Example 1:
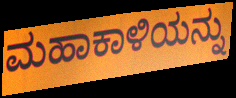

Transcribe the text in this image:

ಮಹಾಕಾಳಿಯನ್ನು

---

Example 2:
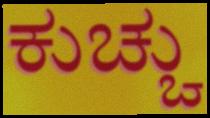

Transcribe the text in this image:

ಕುಚ್ಚು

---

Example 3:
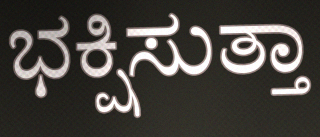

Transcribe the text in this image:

ಭಕ್ಷಿಸುತ್ತಾ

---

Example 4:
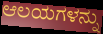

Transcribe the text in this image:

ಆಲಯಗಳನ್ನು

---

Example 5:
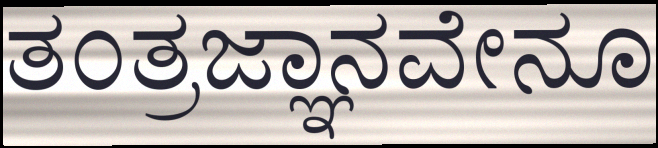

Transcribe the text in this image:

ತಂತ್ರಜ್ಞಾನವೇನೂ